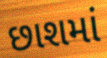
છાશમાં